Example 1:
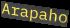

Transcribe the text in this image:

Arapaho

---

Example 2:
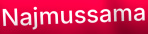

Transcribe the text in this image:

Najmussama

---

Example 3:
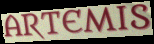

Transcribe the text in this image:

ARTEMIS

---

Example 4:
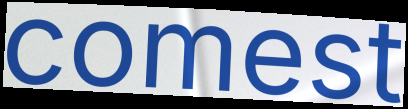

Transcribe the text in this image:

comest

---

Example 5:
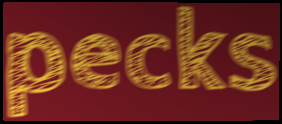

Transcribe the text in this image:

pecks